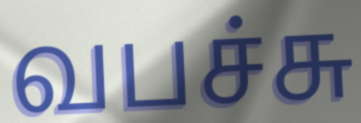
வபச்சு